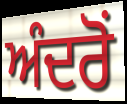
ਅੰਦਰੋਂ